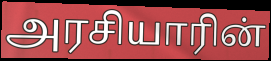
அரசியாரின்